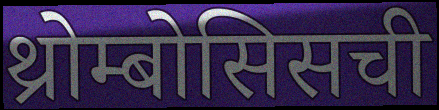
थ्रोम्बोसिसची